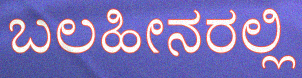
ಬಲಹೀನರಲ್ಲಿ